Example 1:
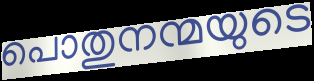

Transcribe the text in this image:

പൊതുനന്മയുടെ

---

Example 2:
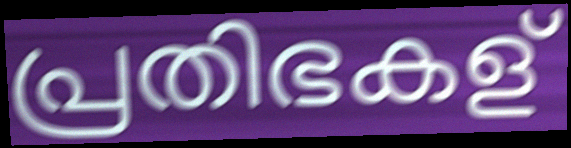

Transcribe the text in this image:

പ്രതിഭകള്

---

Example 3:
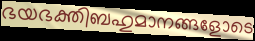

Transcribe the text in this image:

ഭയഭക്തിബഹുമാനങ്ങളോടെ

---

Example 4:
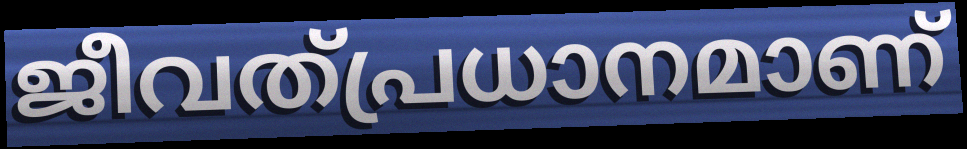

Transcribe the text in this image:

ജീവത്പ്രധാനമാണ്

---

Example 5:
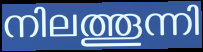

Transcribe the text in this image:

നിലത്തൂന്നി